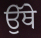
ਉੁੱਥੇ